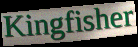
Kingfisher